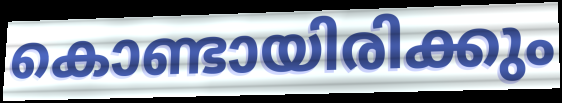
കൊണ്ടായിരിക്കും